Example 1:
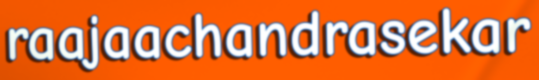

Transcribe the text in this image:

raajaachandrasekar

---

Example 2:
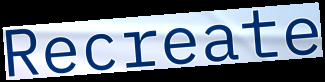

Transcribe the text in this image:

Recreate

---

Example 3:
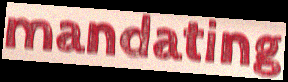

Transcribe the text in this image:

mandating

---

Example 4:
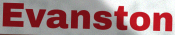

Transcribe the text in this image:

Evanston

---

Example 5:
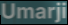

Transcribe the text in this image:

Umarji